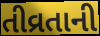
તીવ્રતાની